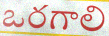
ఒరగాలి